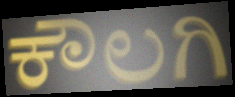
ಕೌಲಗಿ